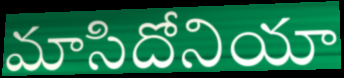
మాసిదోనియా